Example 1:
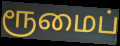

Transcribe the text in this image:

ரூமைப்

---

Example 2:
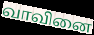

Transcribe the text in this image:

வாவினை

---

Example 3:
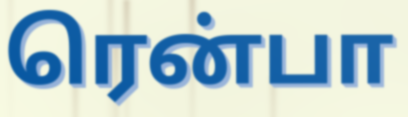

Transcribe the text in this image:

ரென்பா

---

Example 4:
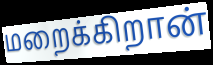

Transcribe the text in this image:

மறைக்கிறான்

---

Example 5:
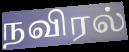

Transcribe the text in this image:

நவிரல்